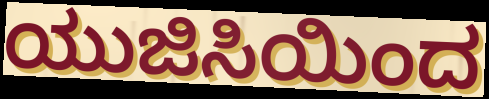
ಯುಜಿಸಿಯಿಂದ